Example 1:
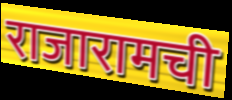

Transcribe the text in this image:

राजारामची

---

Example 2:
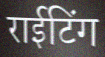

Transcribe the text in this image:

राईटिंग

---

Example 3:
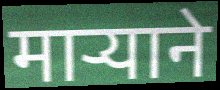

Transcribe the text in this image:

मार्‍याने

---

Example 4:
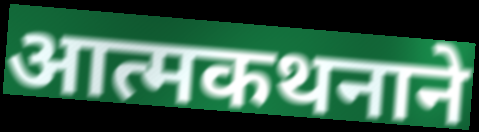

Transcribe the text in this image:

आत्मकथनाने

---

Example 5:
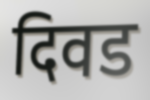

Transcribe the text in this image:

दिवड